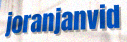
joranjanvid